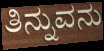
ತಿನ್ನುವನು